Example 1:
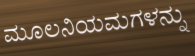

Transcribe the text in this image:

ಮೂಲನಿಯಮಗಳನ್ನು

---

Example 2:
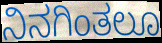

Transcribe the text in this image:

ನಿನಗಿಂತಲೂ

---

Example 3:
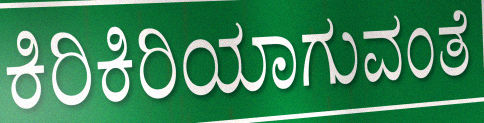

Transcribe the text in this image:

ಕಿರಿಕಿರಿಯಾಗುವಂತೆ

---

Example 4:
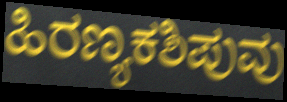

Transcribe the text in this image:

ಹಿರಣ್ಯಕಶಿಪುವು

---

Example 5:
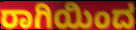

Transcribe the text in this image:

ರಾಗಿಯಿಂದ